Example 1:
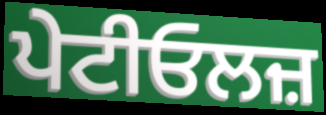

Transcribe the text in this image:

ਪੇਟੀਓਲਜ਼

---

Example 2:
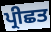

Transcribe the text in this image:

ਪ੍ਰੀਛਤ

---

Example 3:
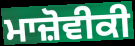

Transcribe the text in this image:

ਮਾਜ਼ੋਵੀਕੀ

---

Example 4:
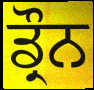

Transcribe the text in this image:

ਡ੍ਰੌਨ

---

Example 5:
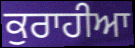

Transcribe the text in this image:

ਕੁਰਾਹੀਆ